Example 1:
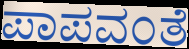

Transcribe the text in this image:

ಪಾಪವಂತೆ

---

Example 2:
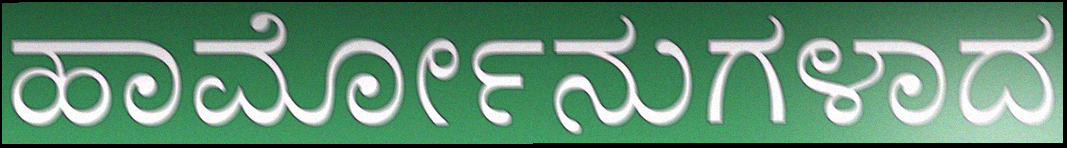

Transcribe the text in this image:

ಹಾರ್ಮೋನುಗಳಾದ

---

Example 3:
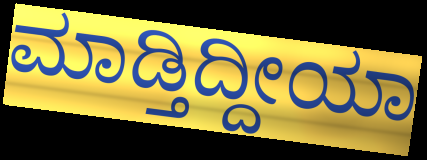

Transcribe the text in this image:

ಮಾಡ್ತಿದ್ದೀಯಾ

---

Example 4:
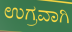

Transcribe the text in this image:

ಉಗ್ರವಾಗಿ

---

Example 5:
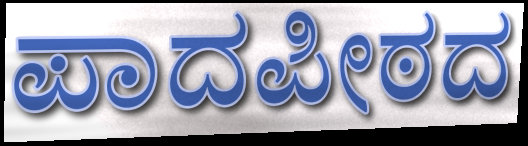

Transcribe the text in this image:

ಪಾದಪೀಠದ